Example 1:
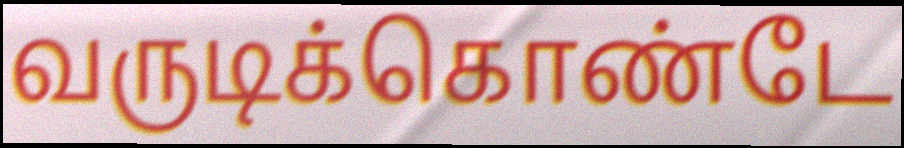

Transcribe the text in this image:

வருடிக்கொண்டே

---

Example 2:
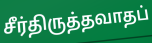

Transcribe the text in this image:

சீர்திருத்தவாதப்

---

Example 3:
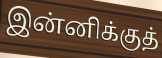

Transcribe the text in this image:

இன்னிக்குத்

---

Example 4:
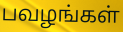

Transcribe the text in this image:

பவழங்கள்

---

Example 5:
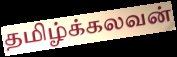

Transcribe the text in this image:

தமிழ்க்கலவன்